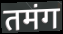
तमंग